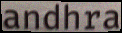
andhra